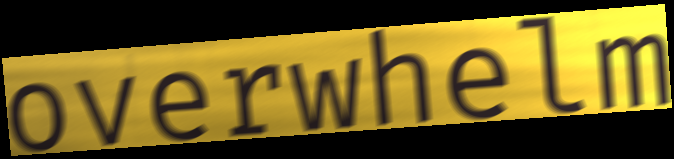
overwhelm